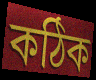
কঠিক